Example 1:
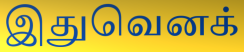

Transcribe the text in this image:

இதுவெனக்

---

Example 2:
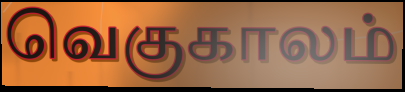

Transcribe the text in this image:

வெகுகாலம்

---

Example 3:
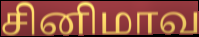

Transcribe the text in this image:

சினிமாவ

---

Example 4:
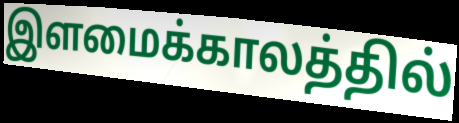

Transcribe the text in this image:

இளமைக்காலத்தில்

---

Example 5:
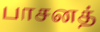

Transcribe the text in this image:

பாசனத்